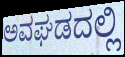
ಅವಘಡದಲ್ಲಿ